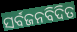
ସର୍ବଜନବିଦିତ